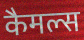
कैमल्स